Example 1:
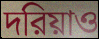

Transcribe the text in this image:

দরিয়াও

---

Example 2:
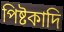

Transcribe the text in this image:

পিষ্টকাদি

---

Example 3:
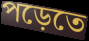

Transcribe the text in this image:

পড়েতে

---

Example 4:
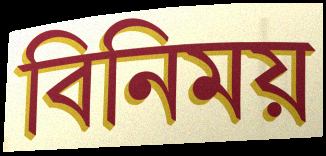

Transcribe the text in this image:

বিনিময়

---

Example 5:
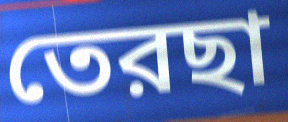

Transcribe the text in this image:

তেরছা